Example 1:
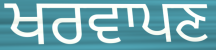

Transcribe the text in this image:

ਖਰਵਾਪਣ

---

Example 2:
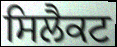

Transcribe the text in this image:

ਸਿਲੈਕਟ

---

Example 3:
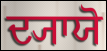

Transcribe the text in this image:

ਦ੍ਯਾਯੋ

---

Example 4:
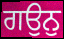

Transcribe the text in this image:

ਗਉਨੁ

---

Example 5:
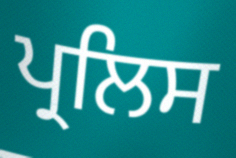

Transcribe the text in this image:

ਪ੍ਰਲਿਸ